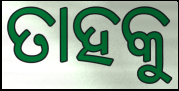
ତାହକୁ